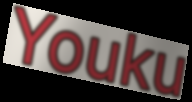
Youku